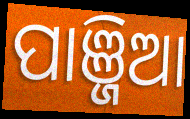
ପାଞ୍ଜିଆ